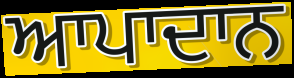
ਆਪਾਦਾਨ